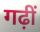
गढ़ीं